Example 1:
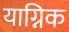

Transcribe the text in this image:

याग्निक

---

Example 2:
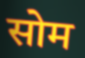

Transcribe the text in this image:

सोम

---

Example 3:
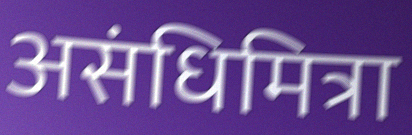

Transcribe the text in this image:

असंधिमित्रा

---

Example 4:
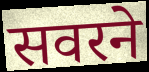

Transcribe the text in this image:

सवरने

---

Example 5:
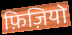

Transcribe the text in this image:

फ़िज़ियो